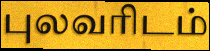
புலவரிடம்